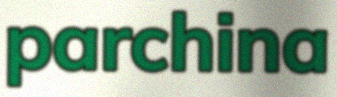
parchina